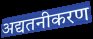
अद्यतनीकरण